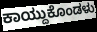
ಕಾಯ್ದುಕೊಂಡಳು